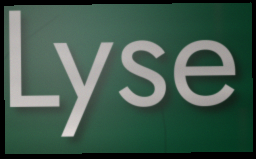
Lyse